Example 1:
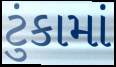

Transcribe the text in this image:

ટુંકામાં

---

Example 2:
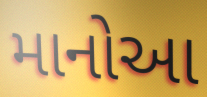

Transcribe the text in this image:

માનોઆ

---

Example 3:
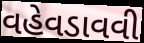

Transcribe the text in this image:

વહેવડાવવી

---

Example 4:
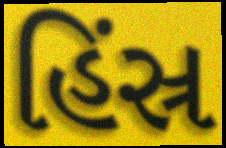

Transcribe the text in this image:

હિંસ્ર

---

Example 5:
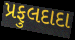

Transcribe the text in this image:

પ્રફુલદાદા